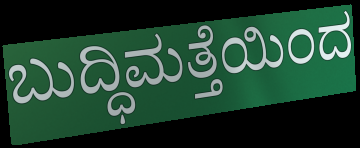
ಬುದ್ಧಿಮತ್ತೆಯಿಂದ